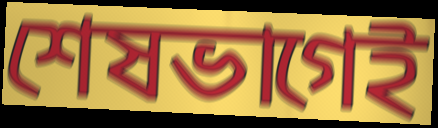
শেষভাগেই